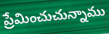
ప్రేమించుచున్నాము